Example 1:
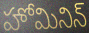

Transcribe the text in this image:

హోమినిన్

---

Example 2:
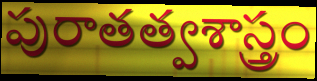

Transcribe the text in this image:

పురాతత్వశాస్త్రం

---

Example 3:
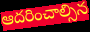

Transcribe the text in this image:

ఆదరించాల్సిన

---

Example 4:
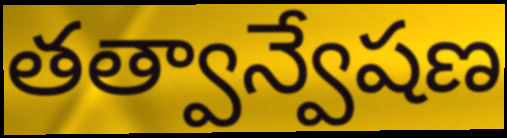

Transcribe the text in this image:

తత్వాన్వేషణ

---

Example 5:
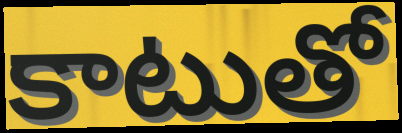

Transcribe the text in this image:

కాటుతో